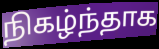
நிகழ்ந்தாக